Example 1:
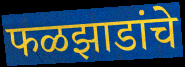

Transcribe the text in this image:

फळझाडांचे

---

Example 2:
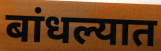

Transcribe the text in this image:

बांधल्यात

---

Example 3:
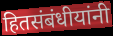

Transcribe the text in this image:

हितसंबंधीयांनी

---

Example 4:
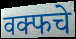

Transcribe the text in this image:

वक्फचे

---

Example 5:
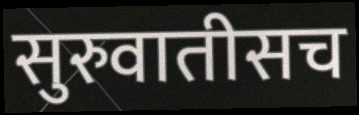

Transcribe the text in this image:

सुरुवातीसच